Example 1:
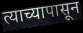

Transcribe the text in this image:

त्याच्यापासून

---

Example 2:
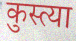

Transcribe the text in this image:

कुस्त्या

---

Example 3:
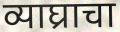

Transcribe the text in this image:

व्याघ्राचा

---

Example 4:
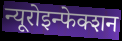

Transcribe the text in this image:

न्यूरोइन्फेक्शन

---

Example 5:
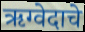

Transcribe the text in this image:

ऋग्वेदाचे